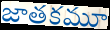
జాతకమూ